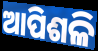
ଆପିଶଳି